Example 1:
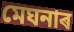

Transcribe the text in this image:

মেঘনাৰ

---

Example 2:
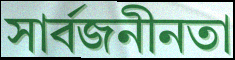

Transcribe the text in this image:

সাৰ্বজনীনতা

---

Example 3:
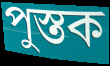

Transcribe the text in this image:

পুস্তক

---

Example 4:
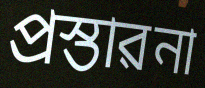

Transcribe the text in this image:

প্ৰস্তাৱনা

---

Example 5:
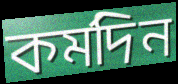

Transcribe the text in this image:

কৰ্মদিন